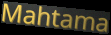
Mahtama